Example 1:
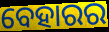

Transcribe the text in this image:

ବେହାରର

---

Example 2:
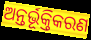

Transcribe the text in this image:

ଅନ୍ତର୍ଭୂକ୍ତିକରଣ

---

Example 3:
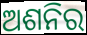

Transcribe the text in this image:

ଅଶନିର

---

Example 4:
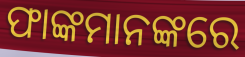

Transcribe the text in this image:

ଫାଙ୍କମାନଙ୍କରେ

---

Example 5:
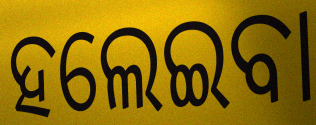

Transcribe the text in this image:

ହଲେଇବା